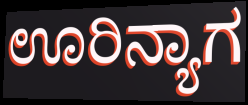
ಊರಿನ್ಯಾಗ